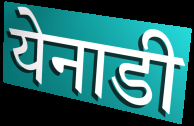
येनाडी